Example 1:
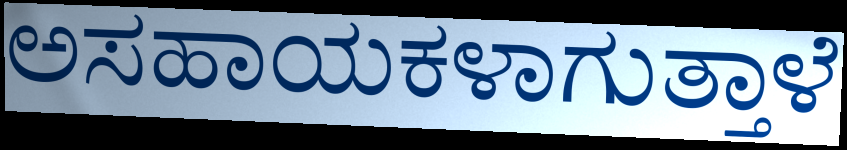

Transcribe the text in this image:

ಅಸಹಾಯಕಳಾಗುತ್ತಾಳೆ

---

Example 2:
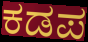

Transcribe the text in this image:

ಕಡಪ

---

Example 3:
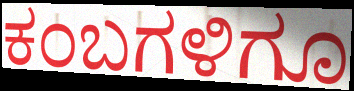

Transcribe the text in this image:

ಕಂಬಗಳಿಗೂ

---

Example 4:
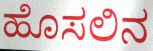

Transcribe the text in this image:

ಹೊಸಲಿನ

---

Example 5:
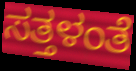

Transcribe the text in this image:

ಸತ್ತಳಂತೆ